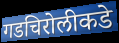
गडचिरोलीकडे